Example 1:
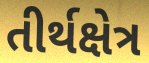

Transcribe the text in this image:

તીર્થક્ષેત્ર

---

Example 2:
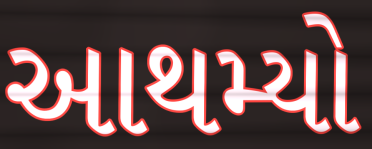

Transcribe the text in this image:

આથમ્યો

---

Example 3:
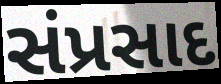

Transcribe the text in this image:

સંપ્રસાદ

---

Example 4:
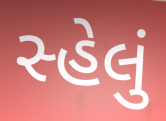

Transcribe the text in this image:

સ્હેલું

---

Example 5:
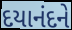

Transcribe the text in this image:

દયાનંદને